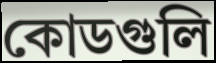
কোডগুলি